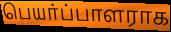
பெயர்ப்பாளராக